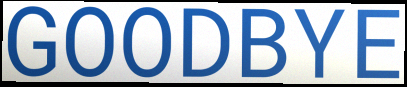
GOODBYE